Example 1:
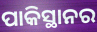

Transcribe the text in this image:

ପାକିସ୍ଥାନର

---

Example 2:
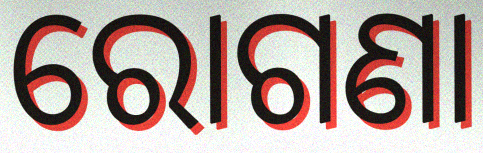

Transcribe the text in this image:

ରୋଗଣା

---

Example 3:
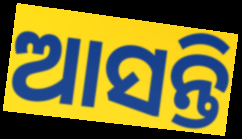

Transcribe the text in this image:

ଆସନ୍ତି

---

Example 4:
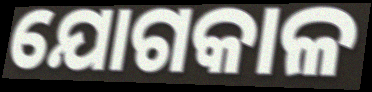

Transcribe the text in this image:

ଯୋଗକାଳ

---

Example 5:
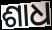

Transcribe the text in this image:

ଶାଧ